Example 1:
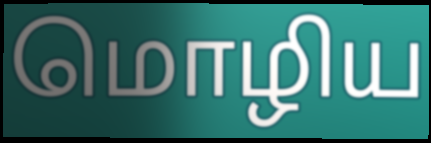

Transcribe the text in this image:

மொழிய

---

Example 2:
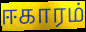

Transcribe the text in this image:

ஈகாரம்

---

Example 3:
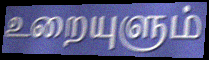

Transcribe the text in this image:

உறையுளும்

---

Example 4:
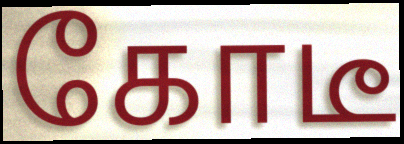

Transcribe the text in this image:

கோடீ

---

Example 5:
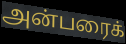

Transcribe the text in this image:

அன்பரைக்